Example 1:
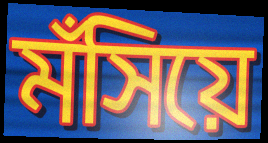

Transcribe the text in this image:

মঁসিয়ে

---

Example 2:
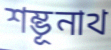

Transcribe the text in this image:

শম্ভূনাথ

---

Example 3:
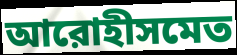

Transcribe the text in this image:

আরোহীসমেত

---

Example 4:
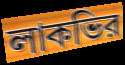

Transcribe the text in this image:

লাকভির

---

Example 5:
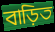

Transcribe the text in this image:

বাড়িত